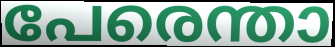
പേരെന്താ